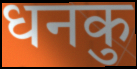
धनकु